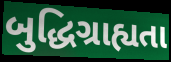
બુદ્ધિગ્રાહ્યતા